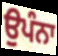
ਉਪੰਨਾ